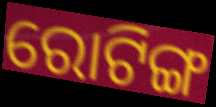
ରୋଟିଙ୍ଗ